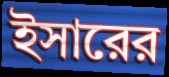
ইসারের